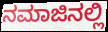
ನಮಾಜಿನಲ್ಲಿ